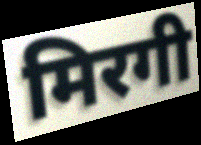
मिरगी